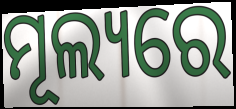
ମୂଲ୍ଯରେ